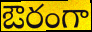
ఔరంగా